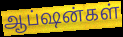
ஆப்ஷன்கள்